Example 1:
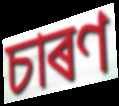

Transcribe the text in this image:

চাৰণ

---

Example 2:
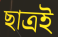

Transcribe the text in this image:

ছাত্ৰই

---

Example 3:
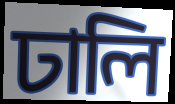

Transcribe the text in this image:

ঢালি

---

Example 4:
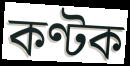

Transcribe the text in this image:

কণ্টক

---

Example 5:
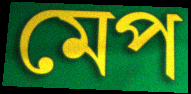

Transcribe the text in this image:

মেপ